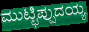
ಮುಟ್ಟಿಪ್ಪುದಯ್ಯ